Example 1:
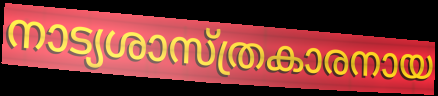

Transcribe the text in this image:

നാട്യശാസ്ത്രകാരനായ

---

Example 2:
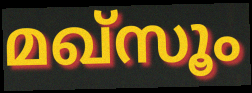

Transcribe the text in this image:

മഖ്സൂം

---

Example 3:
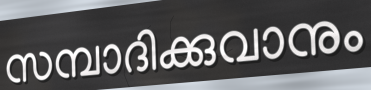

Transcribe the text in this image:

സമ്പാദിക്കുവാനും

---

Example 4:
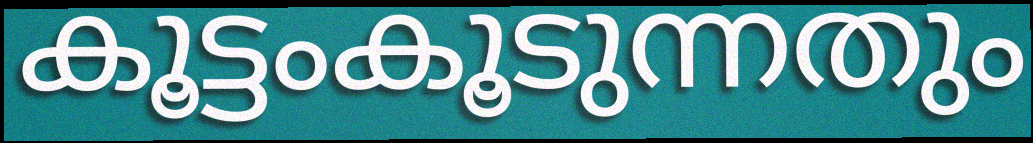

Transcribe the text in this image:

കൂട്ടംകൂടുന്നതും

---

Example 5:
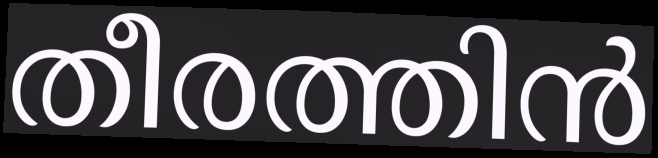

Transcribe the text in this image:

തീരത്തിൻ